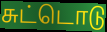
சுட்டொடு